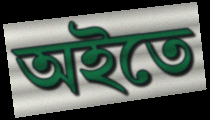
অইতে